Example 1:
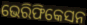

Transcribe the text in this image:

ଭେରିଫିକେସନ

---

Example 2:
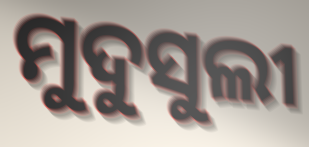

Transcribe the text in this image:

ମୁଦୁସୁଲୀ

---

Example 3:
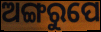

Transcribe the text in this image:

ଅଙ୍ଗରୁପେ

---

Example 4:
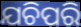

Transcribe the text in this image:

ଯଚିପରି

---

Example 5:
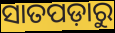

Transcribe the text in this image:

ସାତପଡ଼ାରୁ